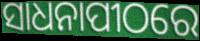
ସାଧନାପୀଠରେ